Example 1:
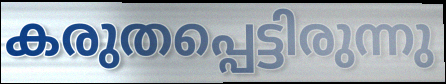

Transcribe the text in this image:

കരുതപ്പെട്ടിരുന്നു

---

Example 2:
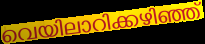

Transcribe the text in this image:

വെയിലാറിക്കഴിഞ്ഞ്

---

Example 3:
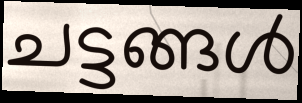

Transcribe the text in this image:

ചട്ടങ്ങൾ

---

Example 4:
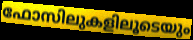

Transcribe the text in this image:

ഫോസിലുകളിലൂടെയും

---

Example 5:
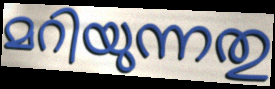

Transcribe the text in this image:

മറിയുന്നതു